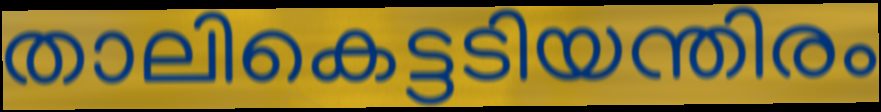
താലികെട്ടടിയന്തിരം